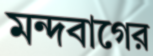
মন্দবাগের